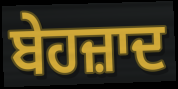
ਬੇਹਜ਼ਾਦ